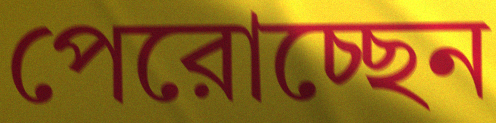
পেরোচ্ছেন